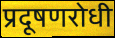
प्रदूषणरोधी